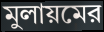
মুলায়মের